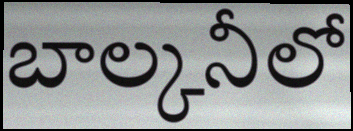
బాల్కనీలో